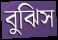
বুঝিস